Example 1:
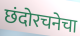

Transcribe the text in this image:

छंदोरचनेचा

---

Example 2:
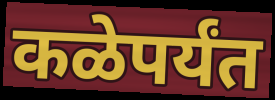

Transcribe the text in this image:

कळेपर्यंत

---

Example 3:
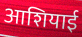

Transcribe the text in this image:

आशियाई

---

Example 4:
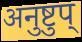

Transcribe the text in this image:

अनुष्टुप्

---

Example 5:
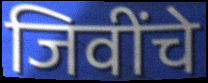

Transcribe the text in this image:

जिवींचे